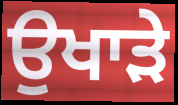
ਉਖਾੜੇ